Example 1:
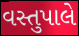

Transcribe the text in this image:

વસ્તુપાલે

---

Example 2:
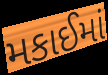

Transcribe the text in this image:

મકાઈમાં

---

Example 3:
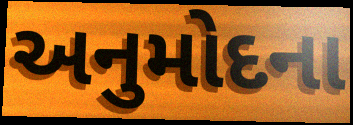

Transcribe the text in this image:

અનુમોદના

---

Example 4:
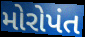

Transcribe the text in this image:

મોરોપંત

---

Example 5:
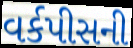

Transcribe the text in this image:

વર્કપીસની